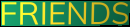
FRIENDS